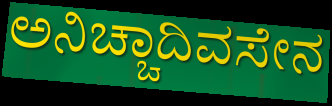
ಅನಿಚ್ಚಾದಿವಸೇನ